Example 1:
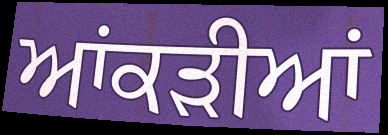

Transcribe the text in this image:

ਆਂਕੜੀਆਂ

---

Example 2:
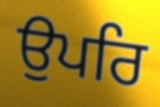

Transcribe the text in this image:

ਉਪਰਿ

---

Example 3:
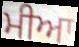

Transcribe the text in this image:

ਮੀਆ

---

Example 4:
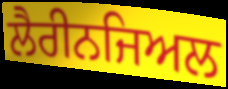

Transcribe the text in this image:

ਲੈਰੀਨਜਿਅਲ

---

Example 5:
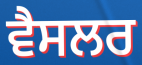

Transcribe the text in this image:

ਵੈਸਲਰ